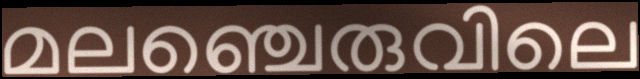
മലഞ്ചെരുവിലെ